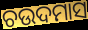
ଚଉଦମାସ